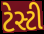
ટેસ્ટી